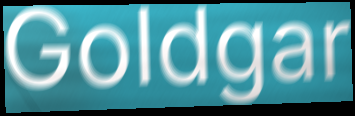
Goldgar